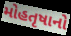
મોહતૃષાનો